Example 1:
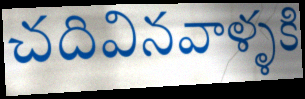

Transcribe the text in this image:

చదివినవాళ్ళకి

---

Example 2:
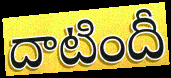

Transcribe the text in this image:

దాటిందీ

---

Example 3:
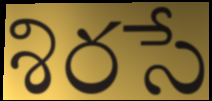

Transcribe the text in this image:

శిరసే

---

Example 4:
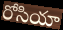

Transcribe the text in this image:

రోసియా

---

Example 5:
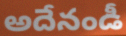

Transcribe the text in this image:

అదేనండీ